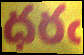
ధరఁ